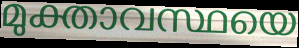
മുക്താവസ്ഥയെ